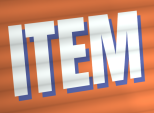
ITEM